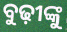
ବୁଢ଼ୀଙ୍କୁ